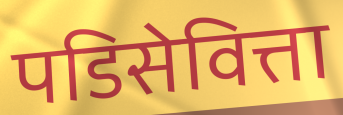
पडिसेवित्ता